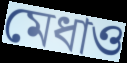
মেধাও